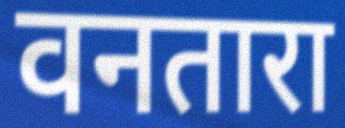
वनतारा